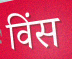
विंस